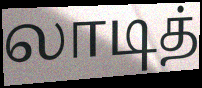
லாடித்